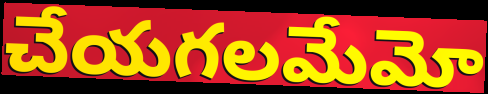
చేయగలమేమో